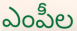
ఎంపీల